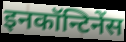
इनकॉन्टिनेंस